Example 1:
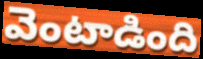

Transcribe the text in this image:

వెంటాడింది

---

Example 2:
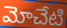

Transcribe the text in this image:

మోచేటి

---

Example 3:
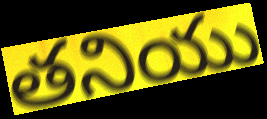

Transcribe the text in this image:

తనియు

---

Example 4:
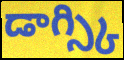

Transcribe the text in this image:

డాగ్స్కి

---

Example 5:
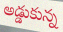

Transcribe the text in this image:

అడ్డుకున్న